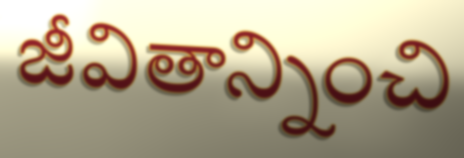
జీవితాన్నించి